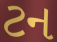
ટન